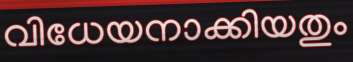
വിധേയനാക്കിയതും